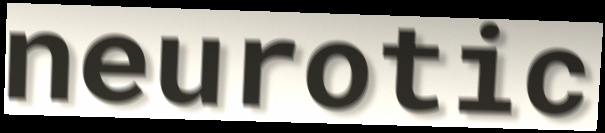
neurotic